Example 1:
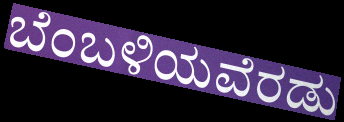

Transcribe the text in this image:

ಬೆಂಬಳಿಯವೆರಡು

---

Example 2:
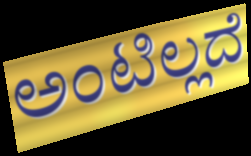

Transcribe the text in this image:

ಅಂಟಿಲ್ಲದೆ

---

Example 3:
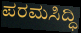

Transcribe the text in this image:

ಪರಮಸಿದ್ಧಿ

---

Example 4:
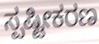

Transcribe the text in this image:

ಸ್ಪಷ್ಟೀಕರಣ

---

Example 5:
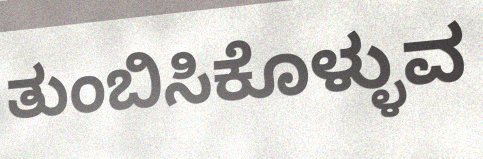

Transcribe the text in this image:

ತುಂಬಿಸಿಕೊಳ್ಳುವ